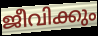
ജീവിക്കും